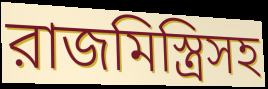
রাজমিস্ত্রিসহ